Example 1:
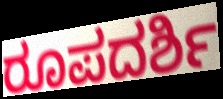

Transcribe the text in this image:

ರೂಪದರ್ಶಿ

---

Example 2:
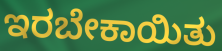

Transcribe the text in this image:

ಇರಬೇಕಾಯಿತು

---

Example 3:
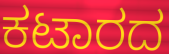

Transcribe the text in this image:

ಕಟಾರದ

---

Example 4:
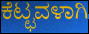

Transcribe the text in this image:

ಕೆಟ್ಟವಳಾಗಿ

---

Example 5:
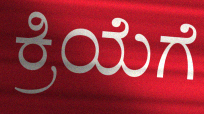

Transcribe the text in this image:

ಕ್ರಿಯೆಗೆ